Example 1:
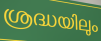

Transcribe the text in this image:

ശ്രദ്ധയിലും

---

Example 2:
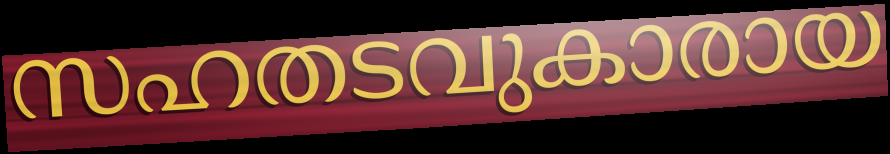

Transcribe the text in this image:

സഹതടവുകാരായ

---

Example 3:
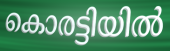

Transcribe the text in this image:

കൊരട്ടിയിൽ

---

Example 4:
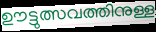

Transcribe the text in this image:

ഊട്ടുത്സവത്തിനുള്ള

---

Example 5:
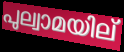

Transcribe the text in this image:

പുല്വാമയില്